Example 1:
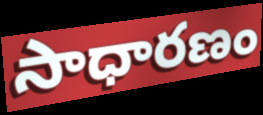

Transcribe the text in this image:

సాధారణం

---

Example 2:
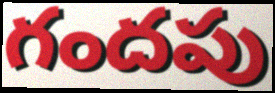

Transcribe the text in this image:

గందపు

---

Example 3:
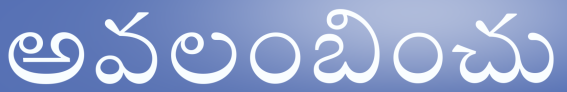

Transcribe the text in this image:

అవలంబించు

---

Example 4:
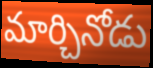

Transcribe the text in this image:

మార్చినోడు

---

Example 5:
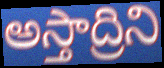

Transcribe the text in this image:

అస్తాద్రిని